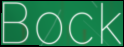
Bock